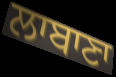
ਲਾਬਾਣਾ